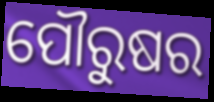
ପୌରୁଷର